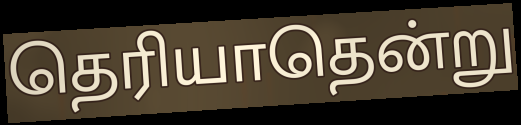
தெரியாதென்று